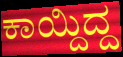
ಕಾಯ್ದಿದ್ದ